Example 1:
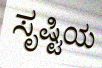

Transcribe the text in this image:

ಸೃಷ್ಟಿಯ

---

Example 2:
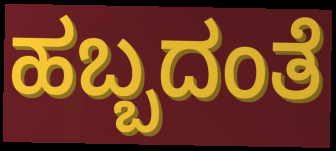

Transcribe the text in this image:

ಹಬ್ಬದಂತೆ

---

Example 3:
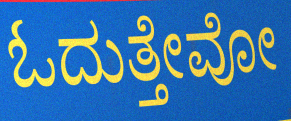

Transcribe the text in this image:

ಓದುತ್ತೇವೋ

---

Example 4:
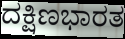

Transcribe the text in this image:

ದಕ್ಷಿಣಭಾರತ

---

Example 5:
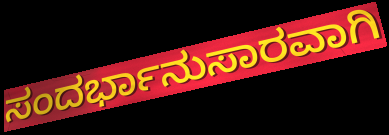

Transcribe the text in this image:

ಸಂದರ್ಭಾನುಸಾರವಾಗಿ